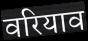
वरियाव